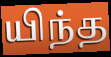
யிந்த